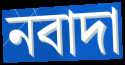
নবাদা